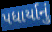
પધાર્યાનું